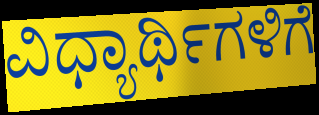
ವಿಧ್ಯಾರ್ಥಿಗಳಿಗೆ